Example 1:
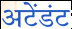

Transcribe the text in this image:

अटेंडंट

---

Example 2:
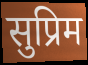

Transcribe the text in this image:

सुप्रिम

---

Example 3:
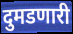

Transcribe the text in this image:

दुमडणारी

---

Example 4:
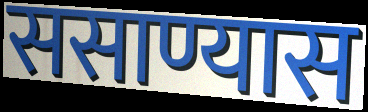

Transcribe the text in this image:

ससाण्यास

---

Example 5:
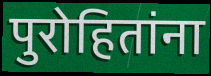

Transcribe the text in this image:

पुरोहितांना